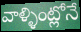
వాళ్ళింట్లోనే